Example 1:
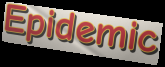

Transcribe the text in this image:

Epidemic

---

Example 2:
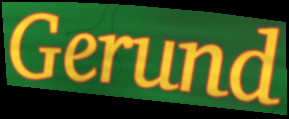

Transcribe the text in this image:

Gerund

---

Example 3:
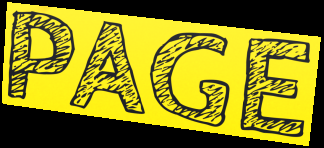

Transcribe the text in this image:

PAGE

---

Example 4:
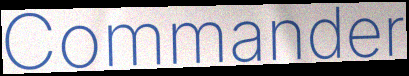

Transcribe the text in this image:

Commander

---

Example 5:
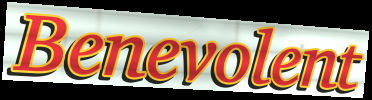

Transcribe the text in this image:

Benevolent